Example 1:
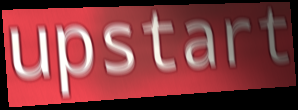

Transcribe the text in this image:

upstart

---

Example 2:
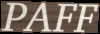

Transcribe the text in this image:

PAFF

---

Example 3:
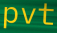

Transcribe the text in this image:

pvt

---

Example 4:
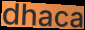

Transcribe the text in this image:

dhaca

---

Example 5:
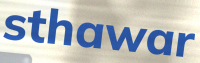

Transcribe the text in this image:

sthawar